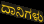
ದಾನಿಗಳು